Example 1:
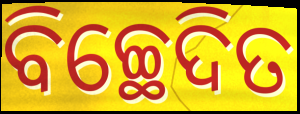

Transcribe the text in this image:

ବିଚ୍ଛେଦିତ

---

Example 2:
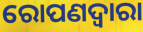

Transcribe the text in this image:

ରୋପଣଦ୍ୱାରା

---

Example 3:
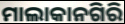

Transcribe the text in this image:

ମାଲାକାନଗିରି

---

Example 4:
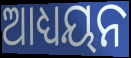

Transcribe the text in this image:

ଆଧ୍ୟୟନ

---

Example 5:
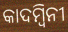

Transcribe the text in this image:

କାଦମ୍ୱିନୀ